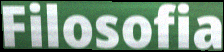
Filosofia